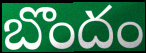
బొందం